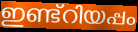
ഇണ്ട്റിയപ്പം